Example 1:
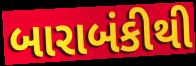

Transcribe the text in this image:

બારાબંકીથી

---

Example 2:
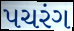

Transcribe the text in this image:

પચરંગ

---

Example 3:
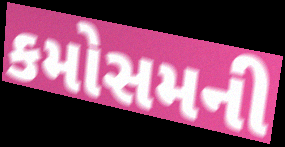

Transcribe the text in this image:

કમોસમની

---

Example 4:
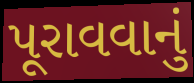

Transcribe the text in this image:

પૂરાવવાનું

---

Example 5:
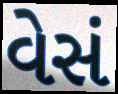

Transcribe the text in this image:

વેસં